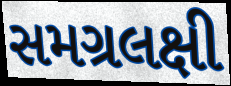
સમગ્રલક્ષી